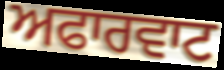
ਅਫਾਰਵਾਟ